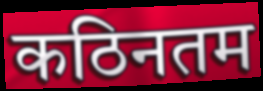
कठिनतम